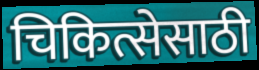
चिकित्सेसाठी